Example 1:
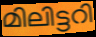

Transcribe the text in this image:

മിലിട്ടറി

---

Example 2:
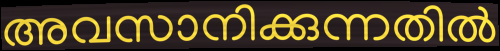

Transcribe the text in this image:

അവസാനിക്കുന്നതിൽ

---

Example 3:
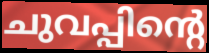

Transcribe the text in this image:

ചുവപ്പിന്റെ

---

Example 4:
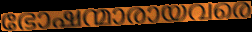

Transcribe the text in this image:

ഭോഷന്മാരായവരെ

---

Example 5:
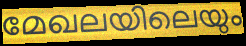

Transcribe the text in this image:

മേഖലയിലെയും